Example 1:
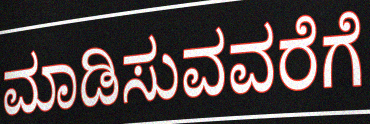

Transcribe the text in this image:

ಮಾಡಿಸುವವರೆಗೆ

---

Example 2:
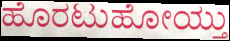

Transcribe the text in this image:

ಹೊರಟುಹೋಯ್ತು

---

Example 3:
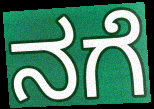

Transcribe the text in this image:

ನಗೆ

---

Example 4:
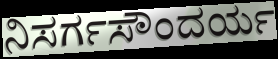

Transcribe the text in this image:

ನಿಸರ್ಗಸೌಂದರ್ಯ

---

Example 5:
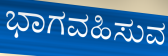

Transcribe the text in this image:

ಭಾಗವಹಿಸುವ